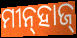
ମୀନ୍‌ହାଜ୍